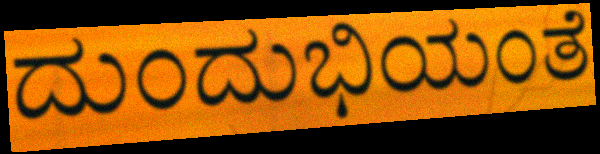
ದುಂದುಭಿಯಂತೆ